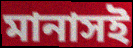
মানাসই